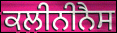
ਕਲੀਨੀਨੈਸ